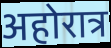
अहोरात्र